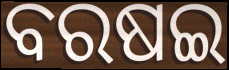
ବରଷଇ